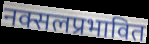
नक्सलप्रभावित